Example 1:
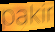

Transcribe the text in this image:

pakir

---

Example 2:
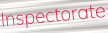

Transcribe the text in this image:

Inspectorate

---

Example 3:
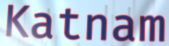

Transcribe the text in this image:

Katnam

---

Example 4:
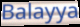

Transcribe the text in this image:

Balayya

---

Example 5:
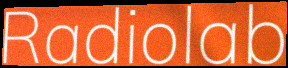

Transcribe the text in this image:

Radiolab